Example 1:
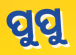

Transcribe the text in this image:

ପୁପୁ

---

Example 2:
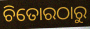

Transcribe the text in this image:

ଚିତୋରଠାରୁ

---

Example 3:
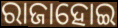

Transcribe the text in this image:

ରାଜାହୋଇ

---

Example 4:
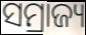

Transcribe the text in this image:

ସମ୍ରାଜ୍ୟ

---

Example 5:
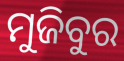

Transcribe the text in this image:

ମୁଜିବୁର